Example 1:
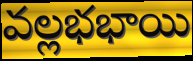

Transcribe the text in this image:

వల్లభభాయి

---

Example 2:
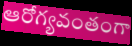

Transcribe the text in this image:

ఆరోగ్యవంతంగా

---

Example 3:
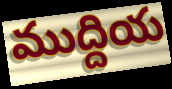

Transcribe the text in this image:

ముద్దియ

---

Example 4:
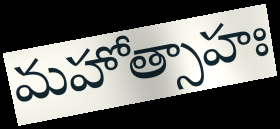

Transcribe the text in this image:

మహోత్సాహః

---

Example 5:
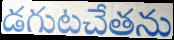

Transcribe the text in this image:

డగుటచేతను